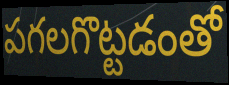
పగలగొట్టడంతో